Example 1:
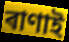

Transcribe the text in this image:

ৰাণাই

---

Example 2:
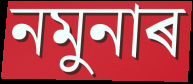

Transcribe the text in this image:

নমুনাৰ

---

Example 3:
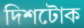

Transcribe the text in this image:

দিশটোক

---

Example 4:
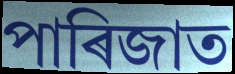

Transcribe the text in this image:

পাৰিজাত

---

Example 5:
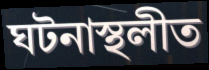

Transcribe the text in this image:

ঘটনাস্থলীত